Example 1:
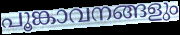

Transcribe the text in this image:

പൂങ്കാവനങ്ങളും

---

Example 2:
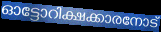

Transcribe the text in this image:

ഓട്ടോറിക്ഷക്കാരനോട്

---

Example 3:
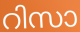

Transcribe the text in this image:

റിസാ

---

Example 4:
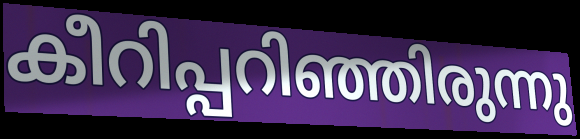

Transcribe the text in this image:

കീറിപ്പറിഞ്ഞിരുന്നു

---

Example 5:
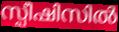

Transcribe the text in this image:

സ്പീഷിസിൽ